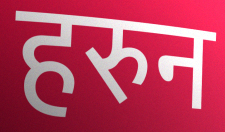
हरुन